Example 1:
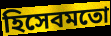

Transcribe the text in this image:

হিসেবমতো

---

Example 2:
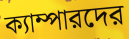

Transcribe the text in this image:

ক্যাম্পারদের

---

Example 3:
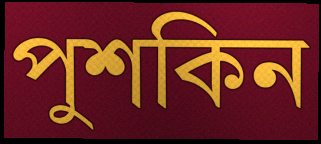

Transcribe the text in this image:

পুশকিন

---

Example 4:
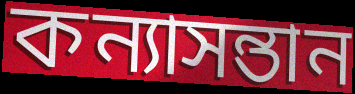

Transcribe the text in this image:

কন্যাসন্তান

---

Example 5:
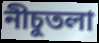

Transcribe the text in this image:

নীচুতলা